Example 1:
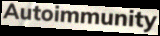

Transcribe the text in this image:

Autoimmunity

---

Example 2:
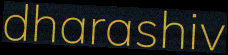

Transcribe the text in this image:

dharashiv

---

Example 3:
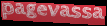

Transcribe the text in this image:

pagevassa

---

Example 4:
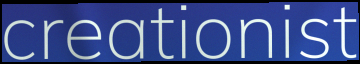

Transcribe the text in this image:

creationist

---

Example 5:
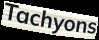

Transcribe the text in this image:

Tachyons